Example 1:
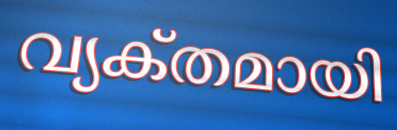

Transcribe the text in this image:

വ്യക്‌തമായി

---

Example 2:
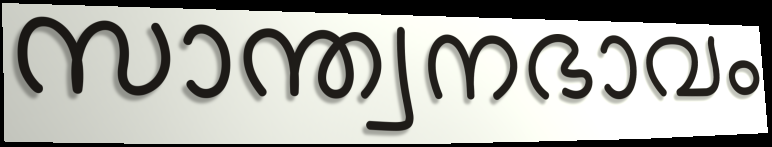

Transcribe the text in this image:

സാന്ത്വനഭാവം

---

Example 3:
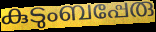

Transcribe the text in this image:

കുടുംബപ്പേരു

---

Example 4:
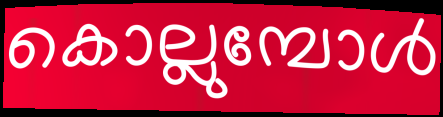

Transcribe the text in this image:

കൊല്ലുമ്പോൾ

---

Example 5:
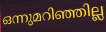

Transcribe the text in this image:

ഒന്നുമറിഞ്ഞില്ല